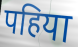
पहिया